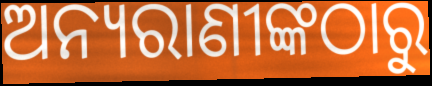
ଅନ୍ୟରାଣୀଙ୍କଠାରୁ